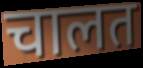
चालत